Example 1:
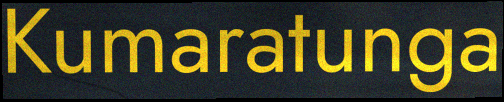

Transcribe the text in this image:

Kumaratunga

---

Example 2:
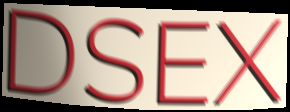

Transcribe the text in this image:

DSEX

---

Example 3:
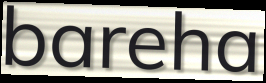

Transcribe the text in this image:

bareha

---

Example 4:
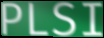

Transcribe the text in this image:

PLSI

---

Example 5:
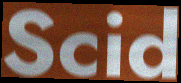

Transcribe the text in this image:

Scid